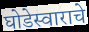
घोडेस्वाराचे